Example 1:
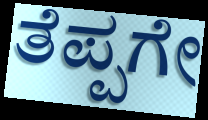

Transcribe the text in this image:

ತೆಪ್ಪಗೇ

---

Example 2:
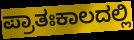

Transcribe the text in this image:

ಪ್ರಾತಃಕಾಲದಲ್ಲಿ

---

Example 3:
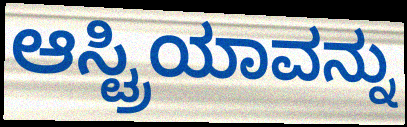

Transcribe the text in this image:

ಆಸ್ಟ್ರಿಯಾವನ್ನು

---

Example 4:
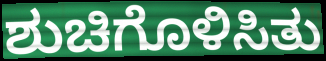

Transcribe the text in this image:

ಶುಚಿಗೊಳಿಸಿತು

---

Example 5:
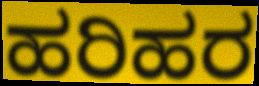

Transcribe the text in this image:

ಹರಿಹರ